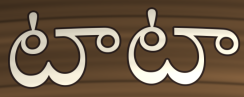
టాటా